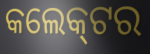
କଲେକ୍‌ଟର